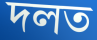
দলত